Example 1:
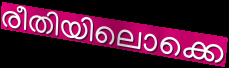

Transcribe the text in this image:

രീതിയിലൊക്കെ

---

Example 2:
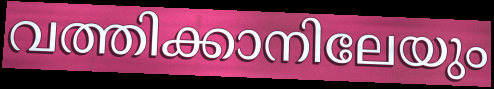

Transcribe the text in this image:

വത്തിക്കാനിലേയും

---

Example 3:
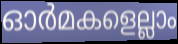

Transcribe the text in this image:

ഓർമകളെല്ലാം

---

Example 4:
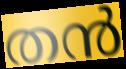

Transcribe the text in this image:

തൻ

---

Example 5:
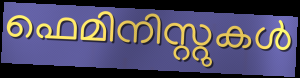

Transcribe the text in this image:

ഫെമിനിസ്റ്റുകൾ